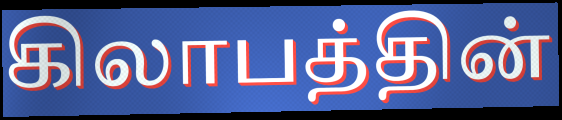
கிலாபத்தின்